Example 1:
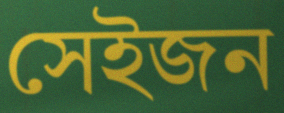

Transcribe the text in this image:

সেইজন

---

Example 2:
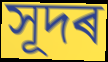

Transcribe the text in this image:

সূদৰ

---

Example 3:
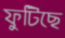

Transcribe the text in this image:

ফুটিছে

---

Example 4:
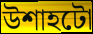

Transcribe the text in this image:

উশাহটো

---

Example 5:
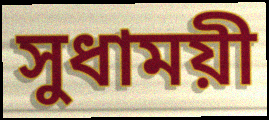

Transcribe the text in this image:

সুধাময়ী